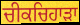
ਚੀਕਚਿਹਾੜਾ